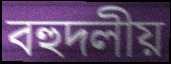
বহুদলীয়